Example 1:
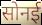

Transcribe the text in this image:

सोनई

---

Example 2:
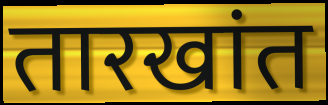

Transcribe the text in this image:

तारखांत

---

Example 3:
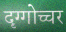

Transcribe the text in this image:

दृग्गोच्चर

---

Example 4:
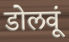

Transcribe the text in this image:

डोलवूं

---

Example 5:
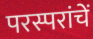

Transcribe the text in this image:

परस्परांचें